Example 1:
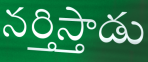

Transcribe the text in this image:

నర్తిస్తాడు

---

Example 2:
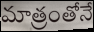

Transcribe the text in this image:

మాత్రంతోనే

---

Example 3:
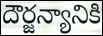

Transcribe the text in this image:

దౌర్జన్యానికి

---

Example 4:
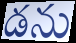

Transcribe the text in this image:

డను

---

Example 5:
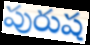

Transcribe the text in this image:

పురుష